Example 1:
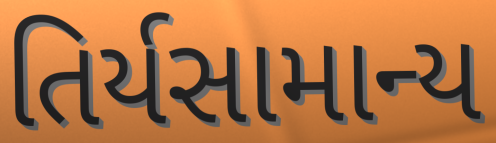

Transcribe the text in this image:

તિર્યસામાન્ય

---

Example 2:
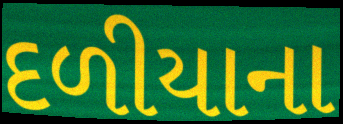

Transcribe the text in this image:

દળીયાના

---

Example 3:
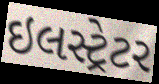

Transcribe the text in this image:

ઇલસ્ટ્રેટર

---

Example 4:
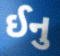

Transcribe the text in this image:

ઈનુ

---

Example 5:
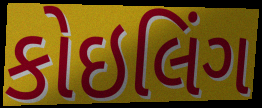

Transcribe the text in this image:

કોઇલિંગ